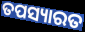
ତପସ୍ୟାରତ